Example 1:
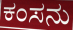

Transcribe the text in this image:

ಕಂಸನು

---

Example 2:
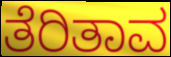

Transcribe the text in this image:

ತೆರಿತಾವ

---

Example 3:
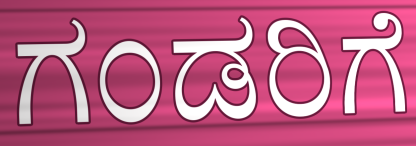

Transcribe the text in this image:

ಗಂಡರಿಗೆ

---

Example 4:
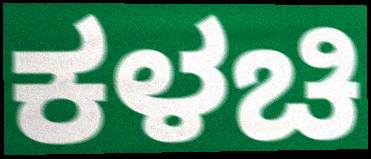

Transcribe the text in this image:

ಕಳಚಿ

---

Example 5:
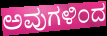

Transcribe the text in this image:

ಅವುಗಳಿಂದ